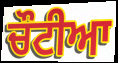
ਚੌਟੀਆ